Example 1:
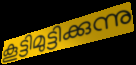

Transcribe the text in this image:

കൂട്ടിമുട്ടിക്കുന്നു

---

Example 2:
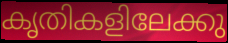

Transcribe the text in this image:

കൃതികളിലേക്കു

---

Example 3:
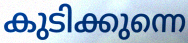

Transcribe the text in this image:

കുടിക്കുന്നെ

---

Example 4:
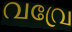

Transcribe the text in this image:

വവ്രേ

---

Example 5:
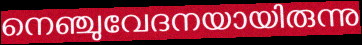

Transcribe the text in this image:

നെഞ്ചുവേദനയായിരുന്നു